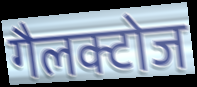
गैलक्टोज